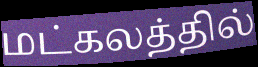
மட்கலத்தில்